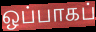
ஒப்பாகப்